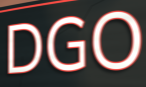
DGO